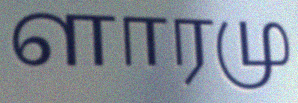
ளாரமு